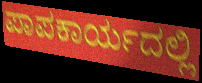
ಪಾಪಕಾರ್ಯದಲ್ಲಿ